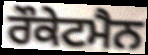
ਰੌਕੇਟਮੈਨ